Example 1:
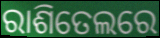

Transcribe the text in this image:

ରାଶିତେଲରେ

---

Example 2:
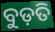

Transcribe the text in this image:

ବୁଡ଼ତି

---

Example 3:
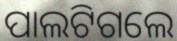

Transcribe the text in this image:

ପାଲଟିଗଲେ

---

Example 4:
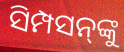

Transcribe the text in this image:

ସିମ୍ପସନ୍‍ଙ୍କୁ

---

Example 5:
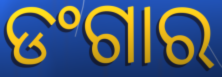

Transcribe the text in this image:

ଡଂଗାର